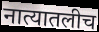
नात्यातलीच